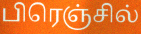
பிரெஞ்சில்